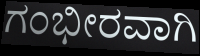
ಗಂಭೀರವಾಗಿ